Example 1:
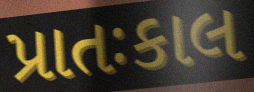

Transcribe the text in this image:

પ્રાતઃકાલ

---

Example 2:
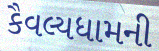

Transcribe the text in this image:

કૈવલ્યધામની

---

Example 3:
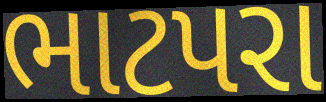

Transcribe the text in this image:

ભાટપરા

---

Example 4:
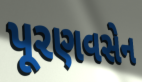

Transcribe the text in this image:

પૂરણવસેન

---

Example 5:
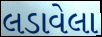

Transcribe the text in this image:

લડાવેલા